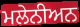
ਮਲੇਨੀਅਨ